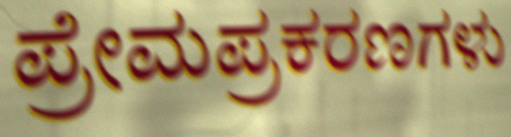
ಪ್ರೇಮಪ್ರಕರಣಗಳು